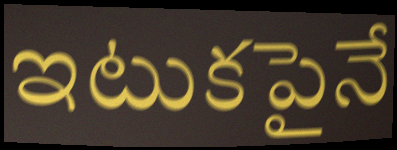
ఇటుకపైనే